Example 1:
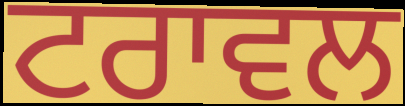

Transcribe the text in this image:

ਟਰਾਵਲ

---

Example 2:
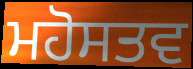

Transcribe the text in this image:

ਮਹੋਸਤਵ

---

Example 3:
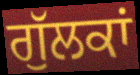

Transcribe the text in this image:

ਗੁੱਲਕਾਂ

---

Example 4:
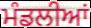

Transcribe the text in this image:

ਮੰਡਲੀਆਂ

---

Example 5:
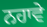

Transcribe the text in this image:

ਨਹਾਵੇ